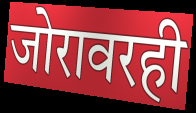
जोरावरही